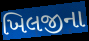
ખિલજીના